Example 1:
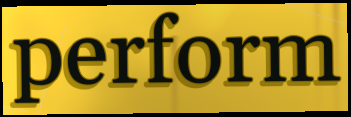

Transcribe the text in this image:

perform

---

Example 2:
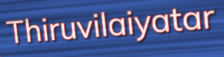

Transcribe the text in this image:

Thiruvilaiyatar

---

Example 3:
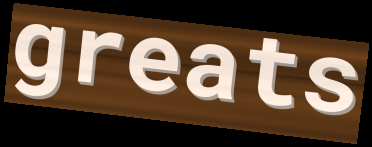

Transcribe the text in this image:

greats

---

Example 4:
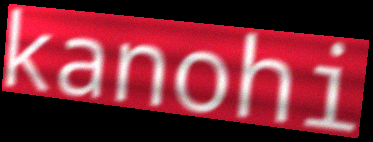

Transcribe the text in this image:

kanohi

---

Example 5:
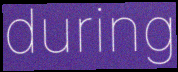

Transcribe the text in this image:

during